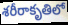
శరీరాకృతిలో